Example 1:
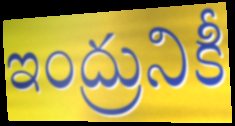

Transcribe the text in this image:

ఇంద్రునికీ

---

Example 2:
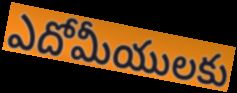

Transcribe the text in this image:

ఎదోమీయులకు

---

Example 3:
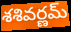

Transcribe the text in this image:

శశివర్ణమ్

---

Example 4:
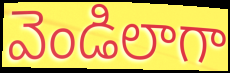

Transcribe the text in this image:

వెండిలాగా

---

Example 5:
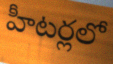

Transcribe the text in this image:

హీటర్లలో